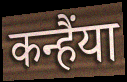
कन्हैंया